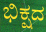
ಭಿಕ್ಷದ